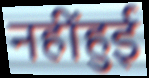
नहींहुई